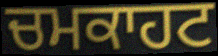
ਚਮਕਾਹਟ